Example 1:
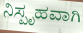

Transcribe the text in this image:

ನಿಸ್ಪೃಹವಾಗಿ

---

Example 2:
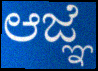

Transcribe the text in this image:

ಆಜ್ಞೆ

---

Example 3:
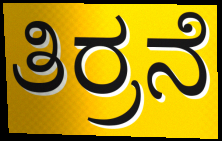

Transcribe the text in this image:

ತಿರ್ರನೆ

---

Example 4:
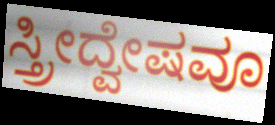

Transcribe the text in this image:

ಸ್ತ್ರೀದ್ವೇಷವೂ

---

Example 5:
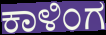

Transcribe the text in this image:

ಕಾಳಿಂಗ